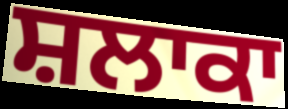
ਸ਼ਲਾਕਾ